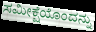
ಸಮೀಕ್ಷೆಯೊಂದನ್ನು